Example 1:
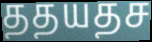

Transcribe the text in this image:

ததயதச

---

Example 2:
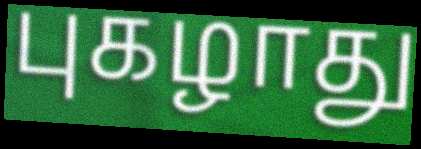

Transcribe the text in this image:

புகழாது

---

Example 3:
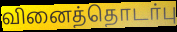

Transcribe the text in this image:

வினைத்தொடர்பு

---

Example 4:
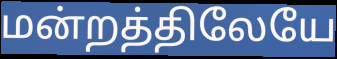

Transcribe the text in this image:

மன்றத்திலேயே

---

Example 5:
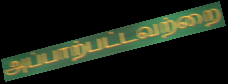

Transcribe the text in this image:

அப்பாற்பட்டவற்றை